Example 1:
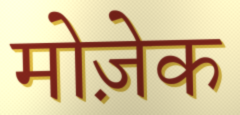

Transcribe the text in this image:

मोज़ेक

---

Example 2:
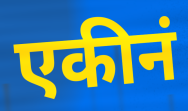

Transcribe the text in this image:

एकीनं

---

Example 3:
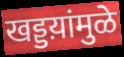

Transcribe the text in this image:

खड्डय़ांमुळे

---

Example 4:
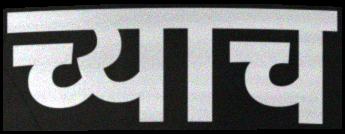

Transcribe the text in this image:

च्याच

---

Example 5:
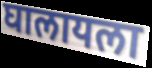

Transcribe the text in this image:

घालायला